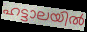
ഹട്ടാലയിൽ